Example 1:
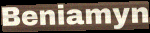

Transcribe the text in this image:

Beniamyn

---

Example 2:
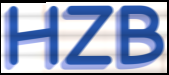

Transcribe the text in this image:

HZB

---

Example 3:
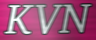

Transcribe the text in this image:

KVN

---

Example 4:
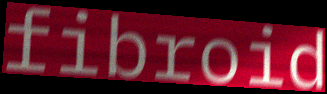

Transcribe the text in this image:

fibroid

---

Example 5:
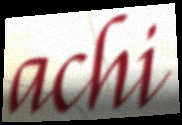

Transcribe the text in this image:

achi